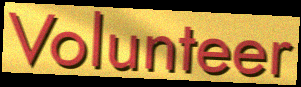
Volunteer